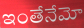
ఇంతేనేమో